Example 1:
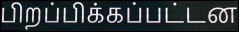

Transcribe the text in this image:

பிறப்பிக்கப்பட்டன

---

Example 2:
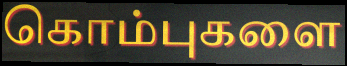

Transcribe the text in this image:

கொம்புகளை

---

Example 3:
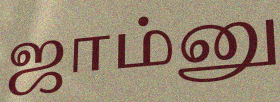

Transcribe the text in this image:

ஜாம்னு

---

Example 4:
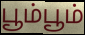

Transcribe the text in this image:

பூம்பூம்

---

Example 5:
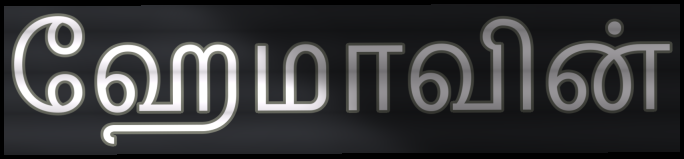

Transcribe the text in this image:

ஹேமாவின்